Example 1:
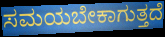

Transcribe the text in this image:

ಸಮಯಬೇಕಾಗುತ್ತದೆ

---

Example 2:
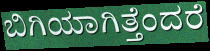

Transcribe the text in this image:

ಬಿಗಿಯಾಗಿತ್ತೆಂದರೆ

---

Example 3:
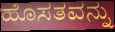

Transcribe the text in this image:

ಹೊಸತವನ್ನು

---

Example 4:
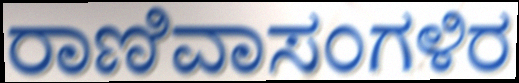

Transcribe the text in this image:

ರಾಣಿವಾಸಂಗಳಿರ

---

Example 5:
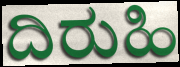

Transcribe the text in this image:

ದಿರುಹಿ